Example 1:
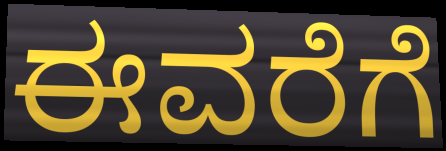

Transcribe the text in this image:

ಈವರೆಗೆ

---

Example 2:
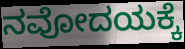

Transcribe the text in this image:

ನವೋದಯಕ್ಕೆ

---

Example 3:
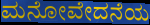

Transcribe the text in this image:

ಮನೋವೇದನೆಯ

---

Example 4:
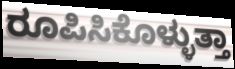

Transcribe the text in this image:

ರೂಪಿಸಿಕೊಳ್ಳುತ್ತಾ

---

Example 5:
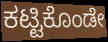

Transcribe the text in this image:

ಕಟ್ಟಿಕೊಂಡೇ